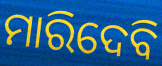
ମାରିଦେବି